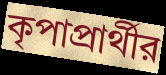
কৃপাপ্রার্থীর